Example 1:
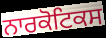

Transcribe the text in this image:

ਨਾਰਕੋਟਿਕਸ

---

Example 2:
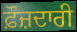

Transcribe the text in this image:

ਫ਼ੌਜ਼ਦਾਰੀ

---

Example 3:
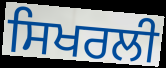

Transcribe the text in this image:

ਸਿਖਰਲੀ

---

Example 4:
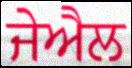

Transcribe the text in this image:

ਜੇਐਲ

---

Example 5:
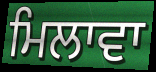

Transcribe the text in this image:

ਮਿਲਾਵਾ